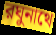
রঘুনাথে